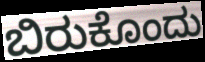
ಬಿರುಕೊಂದು